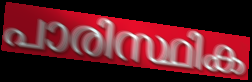
പാരിസ്ഥിക